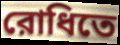
রোধিতে